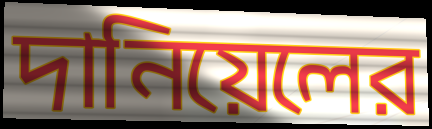
দানিয়েলের